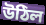
উঠিল